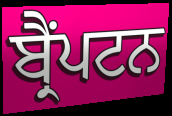
ਬ੍ਰੈਂਪਟਨ